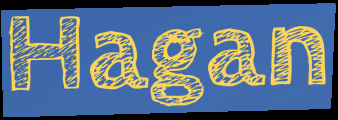
Hagan